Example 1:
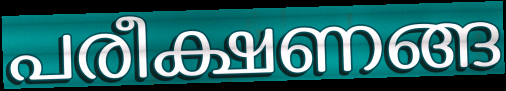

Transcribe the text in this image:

പരീക്ഷണങ്ങ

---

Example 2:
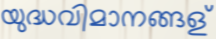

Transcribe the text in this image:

യുദ്ധവിമാനങ്ങള്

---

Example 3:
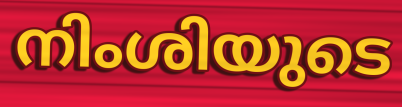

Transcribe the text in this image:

നിംശിയുടെ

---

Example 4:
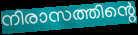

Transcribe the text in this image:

നിരാസത്തിന്റെ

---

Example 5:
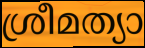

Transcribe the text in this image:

ശ്രീമത്യാ